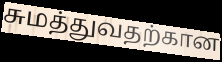
சுமத்துவதற்கான